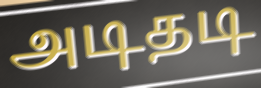
அடிதடி